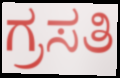
ಗ್ರಸತಿ